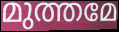
മുത്തമേ